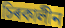
চিৰকালীন